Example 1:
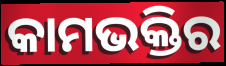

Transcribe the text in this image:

କାମଭକ୍ତିର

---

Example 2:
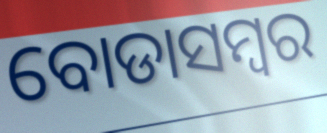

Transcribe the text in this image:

ବୋଡାସମ୍ବର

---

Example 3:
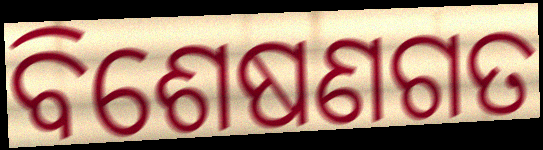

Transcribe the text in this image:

ବିଶେଷଣଗତ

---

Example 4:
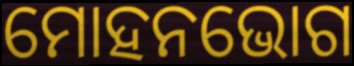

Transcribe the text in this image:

ମୋହନଭୋଗ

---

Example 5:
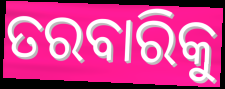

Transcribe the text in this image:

ତରବାରିକୁ